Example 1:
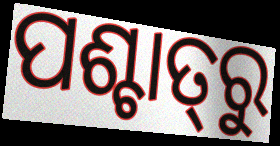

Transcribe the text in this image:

ପଶ୍ଚାତ୍‌ରୁ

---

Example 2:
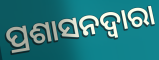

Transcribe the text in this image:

ପ୍ରଶାସନଦ୍ୱାରା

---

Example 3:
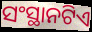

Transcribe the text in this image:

ସଂସ୍ଥାନଟିଏ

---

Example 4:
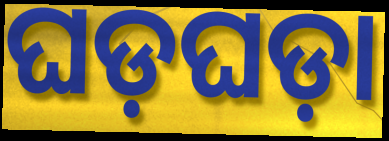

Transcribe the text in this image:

ଘଡ଼ଘଡ଼ା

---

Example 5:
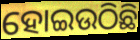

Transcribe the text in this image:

ହୋଇଉଠିଛି